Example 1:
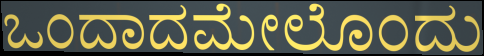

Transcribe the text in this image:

ಒಂದಾದಮೇಲೊಂದು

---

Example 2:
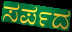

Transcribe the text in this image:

ಸರ್ಪದ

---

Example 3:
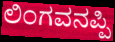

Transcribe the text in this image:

ಲಿಂಗವನಪ್ಪಿ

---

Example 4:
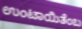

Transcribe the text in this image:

ಉಂಟಾಯಿತೆಂಬ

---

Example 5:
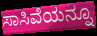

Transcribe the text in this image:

ಸಾಸಿವೆಯನ್ನೂ